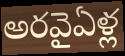
అరవైఏళ్ల